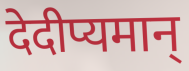
देदीप्यमान्